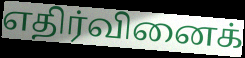
எதிர்வினைக்